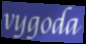
vygoda